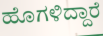
ಹೊಗಳಿದ್ದಾರೆ